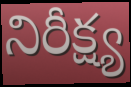
నిరీక్ష్య